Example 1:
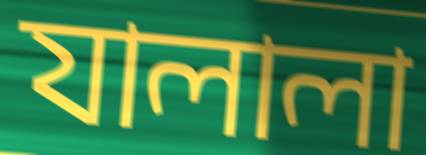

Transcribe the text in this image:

যালালা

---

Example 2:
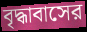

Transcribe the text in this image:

বৃদ্ধাবাসের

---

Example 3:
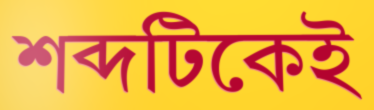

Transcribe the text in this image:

শব্দটিকেই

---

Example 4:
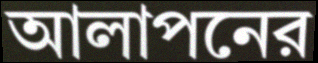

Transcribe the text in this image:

আলাপনের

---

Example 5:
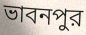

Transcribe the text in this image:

ভাবনপুর